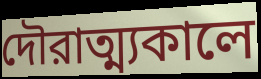
দৌরাত্ম্যকালে